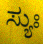
ಸ್ಯುಃ